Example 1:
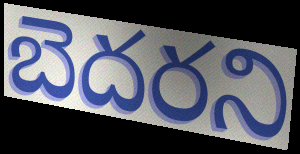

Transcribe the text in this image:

బెదరని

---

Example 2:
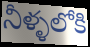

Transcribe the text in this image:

నీళ్ళలోకి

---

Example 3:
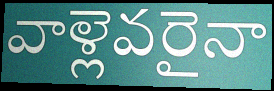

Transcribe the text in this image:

వాళ్లెవరైనా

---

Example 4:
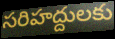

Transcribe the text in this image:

సరిహద్దులకు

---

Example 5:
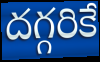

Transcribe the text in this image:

దగ్గరికే